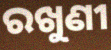
ରଖୁଣୀ